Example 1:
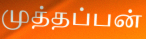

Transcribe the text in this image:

முத்தப்பன்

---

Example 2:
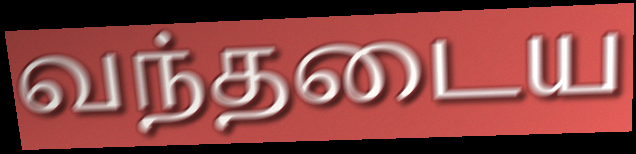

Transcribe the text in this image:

வந்தடைய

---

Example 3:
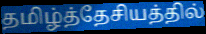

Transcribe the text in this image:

தமிழ்த்தேசியத்தில்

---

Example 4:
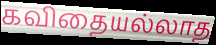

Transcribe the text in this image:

கவிதையல்லாத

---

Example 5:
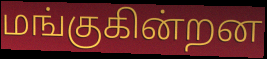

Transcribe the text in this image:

மங்குகின்றன